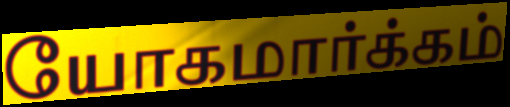
யோகமார்க்கம்